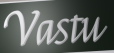
Vastu